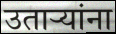
उताऱ्यांना